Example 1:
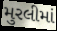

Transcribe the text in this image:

મુરલીમાં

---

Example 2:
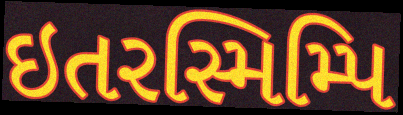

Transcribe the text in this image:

ઇતરસ્મિમ્પિ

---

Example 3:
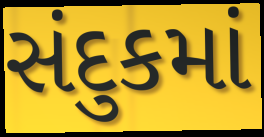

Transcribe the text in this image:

સંદુકમાં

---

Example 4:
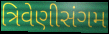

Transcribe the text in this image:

ત્રિવેણીસંગમ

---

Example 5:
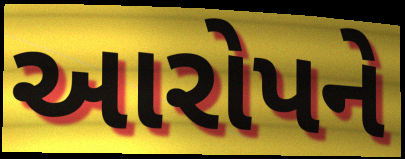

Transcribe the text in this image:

આરોપને